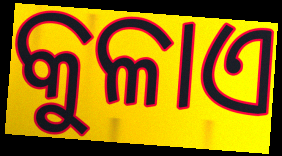
କୁଳାଏ